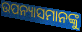
ଉପନ୍ୟାସମାନଙ୍କୁ